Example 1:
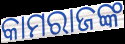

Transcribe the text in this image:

କାମରାଜଙ୍କ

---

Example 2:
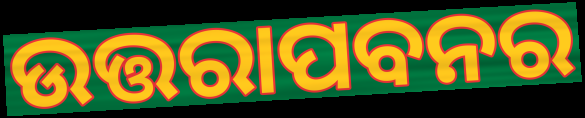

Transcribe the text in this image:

ଉତ୍ତରାପବନର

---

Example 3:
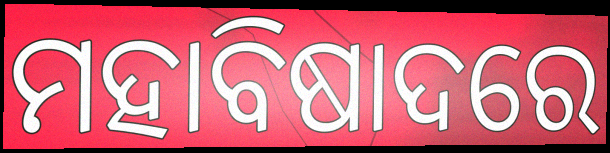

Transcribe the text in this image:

ମହାବିଷାଦରେ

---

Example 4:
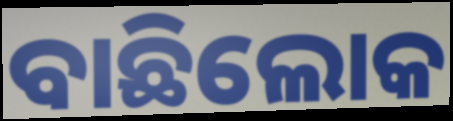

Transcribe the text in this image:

ବାଛିଲୋକ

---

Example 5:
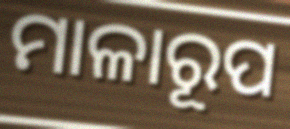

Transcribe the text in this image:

ମାଳାରୂପ